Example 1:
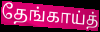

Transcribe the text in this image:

தேங்காய்த்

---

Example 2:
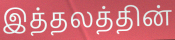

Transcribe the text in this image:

இத்தலத்தின்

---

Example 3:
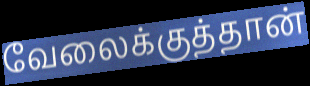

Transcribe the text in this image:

வேலைக்குத்தான்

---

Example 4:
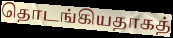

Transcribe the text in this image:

தொடங்கியதாகத்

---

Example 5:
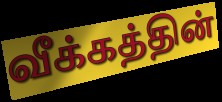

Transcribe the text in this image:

வீக்கத்தின்